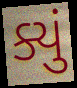
ક્યું